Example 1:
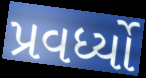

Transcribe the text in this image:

પ્રવર્ધ્યો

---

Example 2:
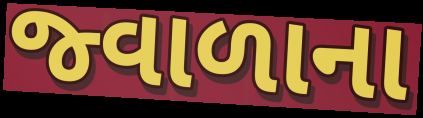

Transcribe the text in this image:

જ્વાળાના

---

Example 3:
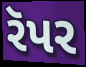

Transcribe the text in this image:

રૅપર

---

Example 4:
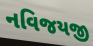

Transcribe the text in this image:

નવિજયજી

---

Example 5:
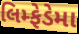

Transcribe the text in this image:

લિમ્ફેડેમા